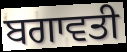
ਬਗਾਵਤੀ